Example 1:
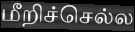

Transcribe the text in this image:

மீறிச்செல்ல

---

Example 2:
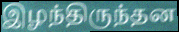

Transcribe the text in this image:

இழந்திருந்தன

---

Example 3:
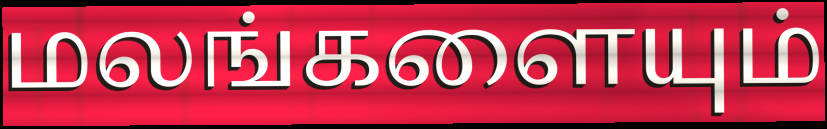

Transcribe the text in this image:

மலங்களையும்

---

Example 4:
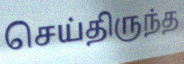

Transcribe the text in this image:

செய்திருந்த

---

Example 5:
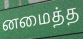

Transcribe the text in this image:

னமைத்த